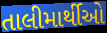
તાલીમાર્થીઓ